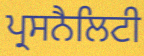
ਪ੍ਰਸਨੈਲਿਟੀ